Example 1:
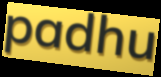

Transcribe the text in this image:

padhu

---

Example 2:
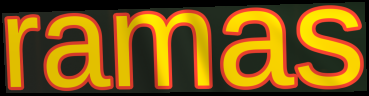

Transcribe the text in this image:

ramas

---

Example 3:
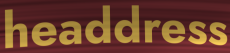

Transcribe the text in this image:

headdress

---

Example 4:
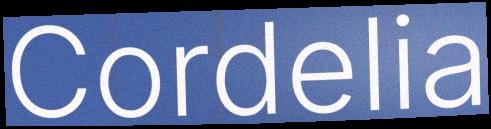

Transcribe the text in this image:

Cordelia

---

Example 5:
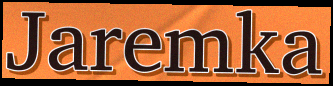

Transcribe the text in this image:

Jaremka